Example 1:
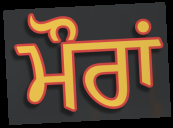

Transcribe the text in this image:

ਮੌਰਾਂ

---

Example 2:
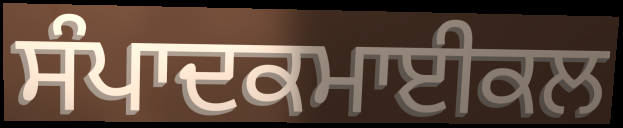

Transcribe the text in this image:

ਸੰਪਾਦਕਮਾਈਕਲ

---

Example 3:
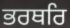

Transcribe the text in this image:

ਭਰਥਰਿ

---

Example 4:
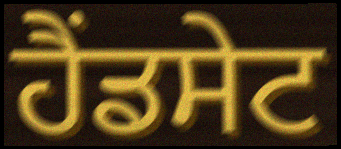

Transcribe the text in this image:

ਹੈਂਡਸੇਟ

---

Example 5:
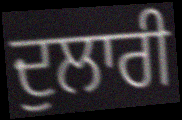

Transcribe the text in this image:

ਦੁਲਾਰੀ